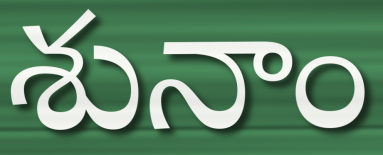
శునాం